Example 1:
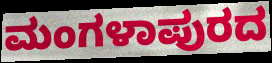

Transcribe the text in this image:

ಮಂಗಳಾಪುರದ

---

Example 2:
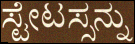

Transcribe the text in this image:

ಸ್ಟೇಟಸ್ಸನ್ನು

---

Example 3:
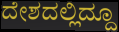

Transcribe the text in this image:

ದೇಶದಲ್ಲಿದ್ದೂ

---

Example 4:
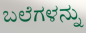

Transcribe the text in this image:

ಬಲೆಗಳನ್ನು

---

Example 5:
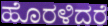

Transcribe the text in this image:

ಹೊರಳಿದರೆ